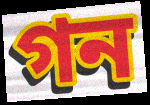
গন